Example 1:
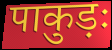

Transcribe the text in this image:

पाकुड़ः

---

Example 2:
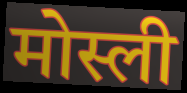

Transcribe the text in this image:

मोस्ली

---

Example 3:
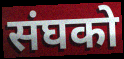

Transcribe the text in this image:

संघको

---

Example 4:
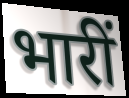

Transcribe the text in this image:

भारीं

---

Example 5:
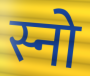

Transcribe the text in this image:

स्नो